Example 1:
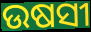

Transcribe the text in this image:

ଉଷସୀ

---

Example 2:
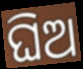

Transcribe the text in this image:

ଘିଅ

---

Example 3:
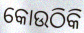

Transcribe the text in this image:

କୋଉଠିକି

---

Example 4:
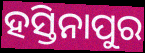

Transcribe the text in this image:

ହସ୍ତିନାପୁର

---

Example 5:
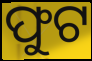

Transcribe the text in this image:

ଫୁଟ